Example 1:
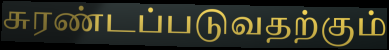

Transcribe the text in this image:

சுரண்டப்படுவதற்கும்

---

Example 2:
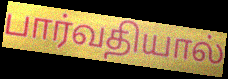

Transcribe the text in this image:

பார்வதியால்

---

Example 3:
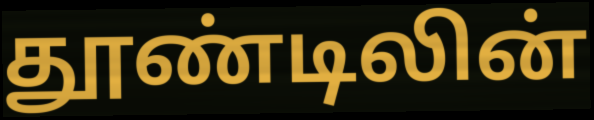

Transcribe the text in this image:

தூண்டிலின்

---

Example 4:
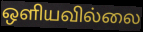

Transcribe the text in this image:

ஒளியவில்லை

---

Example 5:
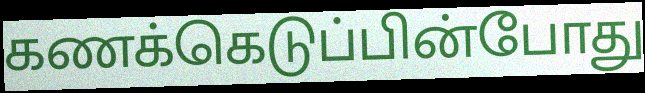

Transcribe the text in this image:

கணக்கெடுப்பின்போது